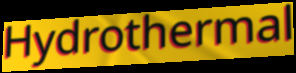
Hydrothermal